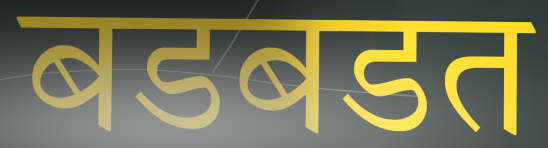
बडबडत